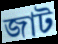
জাট